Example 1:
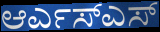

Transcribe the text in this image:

ಆರ್ಎಸ್ಎಸ್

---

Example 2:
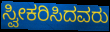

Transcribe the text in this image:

ಸ್ವೀಕರಿಸಿದವರು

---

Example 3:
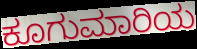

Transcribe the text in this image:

ಕೂಗುಮಾರಿಯ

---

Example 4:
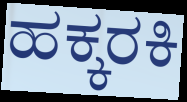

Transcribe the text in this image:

ಹಕ್ಕರಕಿ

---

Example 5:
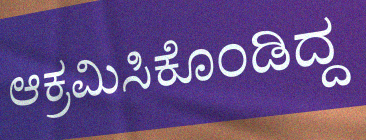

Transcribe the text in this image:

ಆಕ್ರಮಿಸಿಕೊಂಡಿದ್ದ